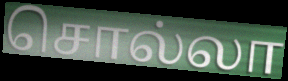
சொல்லா